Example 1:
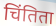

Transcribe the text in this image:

चिंतिता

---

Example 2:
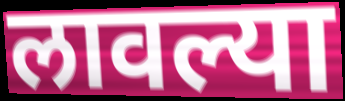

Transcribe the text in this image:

लावल्या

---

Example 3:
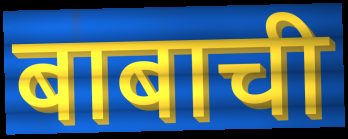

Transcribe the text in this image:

बाबाची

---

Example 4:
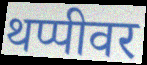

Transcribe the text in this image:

थप्पीवर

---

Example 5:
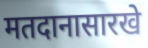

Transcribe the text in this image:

मतदानासारखे